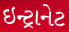
ઇન્ટ્રાનેટ